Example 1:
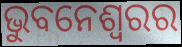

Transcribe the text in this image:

ଭୁବନେଶ୍ୱରର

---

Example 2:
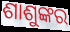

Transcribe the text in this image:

ଶାଶୁଙ୍କର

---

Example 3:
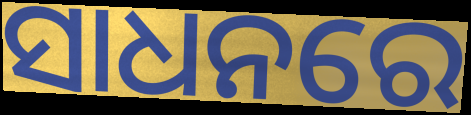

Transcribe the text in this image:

ସାଧନରେ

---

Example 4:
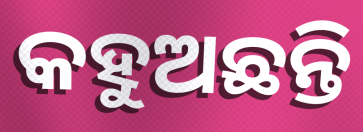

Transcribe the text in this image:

କହୁଅଛନ୍ତି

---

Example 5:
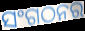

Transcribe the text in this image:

ସଂଗଠନର